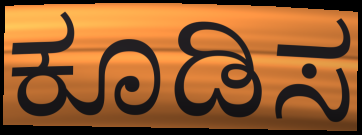
ಕೂಡಿಸ